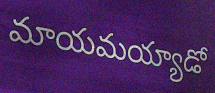
మాయమయ్యాడో